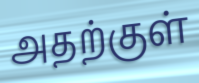
அதற்குள்